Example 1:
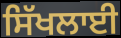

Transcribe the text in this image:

ਸਿੱਖਲਾਈ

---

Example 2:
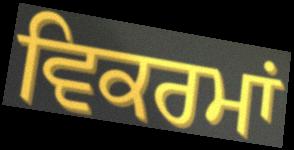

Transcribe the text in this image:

ਵਿਕਰਮਾਂ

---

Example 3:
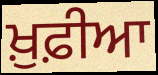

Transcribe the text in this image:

ਖ਼ੁਫ਼ੀਆ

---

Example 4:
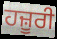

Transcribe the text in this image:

ਹਜ਼ੂਰੀ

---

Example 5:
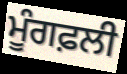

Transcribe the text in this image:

ਮੂੰਗਫ਼ਲੀ